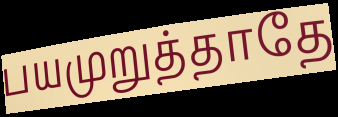
பயமுறுத்தாதே